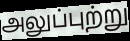
அலுப்புற்று